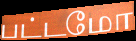
பட்டமோ